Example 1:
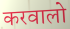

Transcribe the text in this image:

करवालो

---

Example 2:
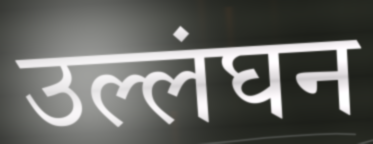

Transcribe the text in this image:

उल्लंघन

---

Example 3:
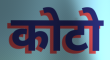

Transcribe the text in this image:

कोटो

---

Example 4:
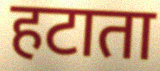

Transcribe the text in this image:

हटाता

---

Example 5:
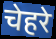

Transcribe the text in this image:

चेहरे